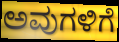
ಅವುಗಳಿಗೆ